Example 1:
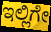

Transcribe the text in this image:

ಇಲ್ಲಿಗೇ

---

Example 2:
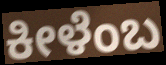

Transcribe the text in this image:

ಕೀಳೆಂಬ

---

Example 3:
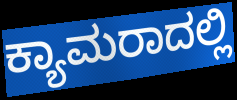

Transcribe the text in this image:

ಕ್ಯಾಮರಾದಲ್ಲಿ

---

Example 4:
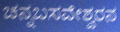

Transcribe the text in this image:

ಚನ್ನಬಸವೇಶ್ವರನ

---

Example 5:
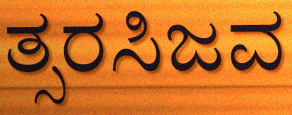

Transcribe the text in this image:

ತ್ಸರಸಿಜವ